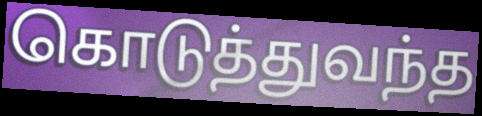
கொடுத்துவந்த